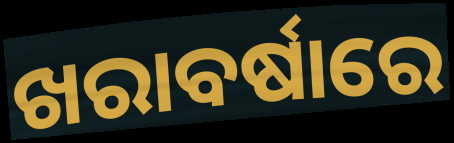
ଖରାବର୍ଷାରେ